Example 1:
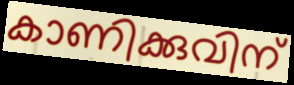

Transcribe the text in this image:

കാണിക്കുവിന്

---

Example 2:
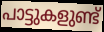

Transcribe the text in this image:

പാട്ടുകളുണ്ട്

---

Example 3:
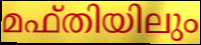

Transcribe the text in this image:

മഫ്തിയിലും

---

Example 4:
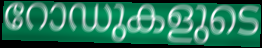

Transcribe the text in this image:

റോഡുകളുടെ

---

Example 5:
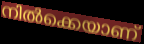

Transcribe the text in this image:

നിൽക്കെയാണ്